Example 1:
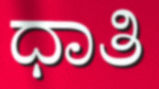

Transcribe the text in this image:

ಧಾತಿ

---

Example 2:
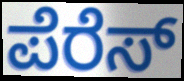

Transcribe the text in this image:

ಪೆರೆಸ್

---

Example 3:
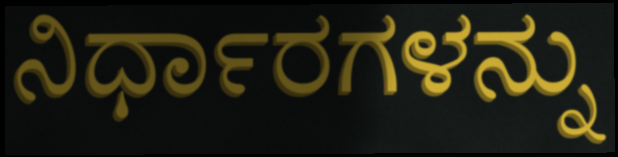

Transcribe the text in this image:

ನಿರ್ಧಾರಗಳನ್ನು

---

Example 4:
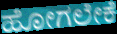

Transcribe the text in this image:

ಹೋಗಲೇಕೆ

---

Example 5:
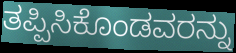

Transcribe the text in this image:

ತಪ್ಪಿಸಿಕೊಂಡವರನ್ನು